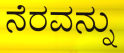
ನೆರವನ್ನು